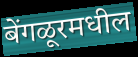
बेंगळूरमधील